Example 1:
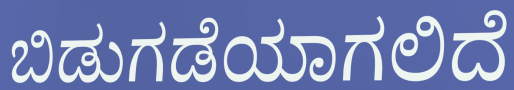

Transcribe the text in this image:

ಬಿಡುಗಡೆಯಾಗಲಿದೆ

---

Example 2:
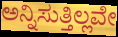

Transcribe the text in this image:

ಅನ್ನಿಸುತ್ತಿಲ್ಲವೇ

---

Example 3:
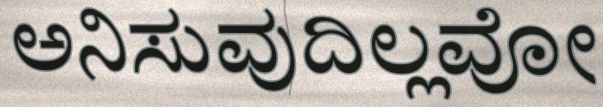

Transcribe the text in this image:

ಅನಿಸುವುದಿಲ್ಲವೋ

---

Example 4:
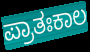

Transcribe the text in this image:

ಪ್ರಾತಃಕಾಲ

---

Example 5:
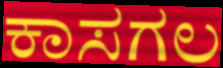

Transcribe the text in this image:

ಕಾಸಗಲ